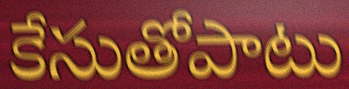
కేసుతోపాటు